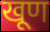
खूण